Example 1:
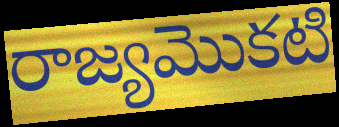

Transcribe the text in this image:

రాజ్యమొకటి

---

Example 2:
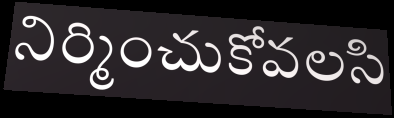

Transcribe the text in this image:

నిర్మించుకోవలసి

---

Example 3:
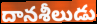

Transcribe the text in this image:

దానశీలుడు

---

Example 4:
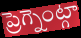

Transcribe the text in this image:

ప్రెగ్నెంట్గా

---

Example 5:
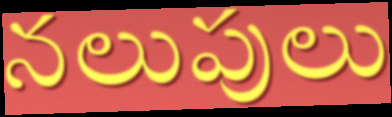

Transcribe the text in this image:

నలుపులు